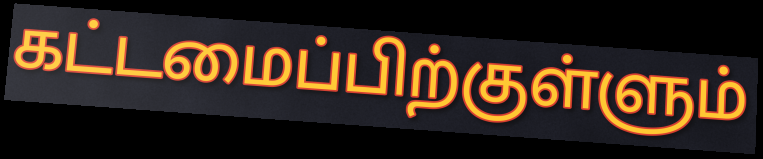
கட்டமைப்பிற்குள்ளும்